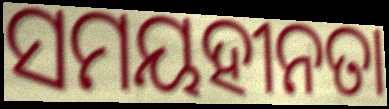
ସମୟହୀନତା